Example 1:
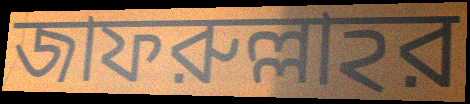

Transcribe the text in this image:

জাফরুল্লাহর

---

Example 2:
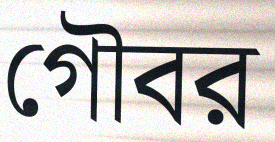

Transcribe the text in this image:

গৌবর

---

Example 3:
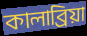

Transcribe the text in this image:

কালাব্রিয়া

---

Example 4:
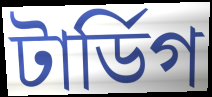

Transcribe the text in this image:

টার্ডিগ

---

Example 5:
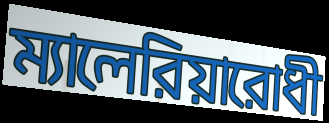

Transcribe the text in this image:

ম্যালেরিয়ারোধী